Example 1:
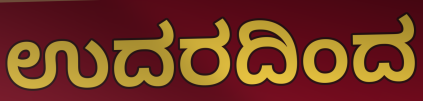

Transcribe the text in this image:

ಉದರದಿಂದ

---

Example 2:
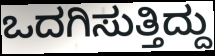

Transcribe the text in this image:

ಒದಗಿಸುತ್ತಿದ್ದು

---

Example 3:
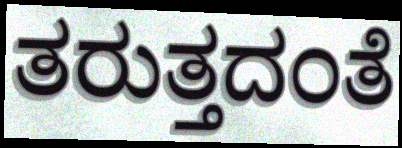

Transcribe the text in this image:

ತರುತ್ತದಂತೆ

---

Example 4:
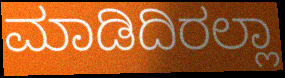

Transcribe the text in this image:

ಮಾಡಿದಿರಲ್ಲಾ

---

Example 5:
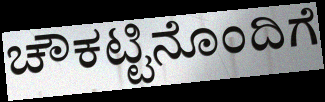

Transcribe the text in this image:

ಚೌಕಟ್ಟಿನೊಂದಿಗೆ